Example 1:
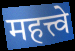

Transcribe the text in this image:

महत्त्वे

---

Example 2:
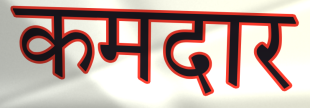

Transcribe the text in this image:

कमदार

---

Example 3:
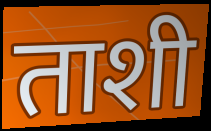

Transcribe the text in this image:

ताशी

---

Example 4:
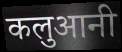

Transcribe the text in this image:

कलुआनी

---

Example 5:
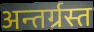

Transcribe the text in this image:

अन्तर्ग्रस्त